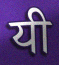
यी